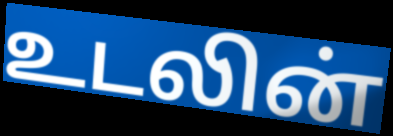
உடலின்